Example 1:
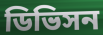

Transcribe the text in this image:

ডিভিসন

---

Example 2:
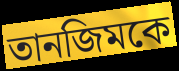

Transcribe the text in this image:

তানজিমকে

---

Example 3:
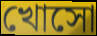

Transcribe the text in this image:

খোসো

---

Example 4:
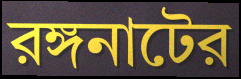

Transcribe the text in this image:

রঙ্গনাটের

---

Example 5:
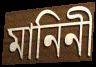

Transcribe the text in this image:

মানিনী